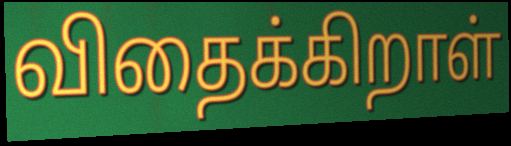
விதைக்கிறாள்